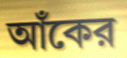
আঁকের